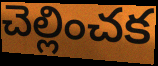
చెల్లించక